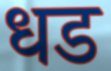
धड